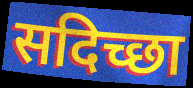
सदिच्छा